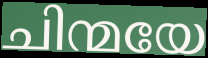
ചിന്മയേ